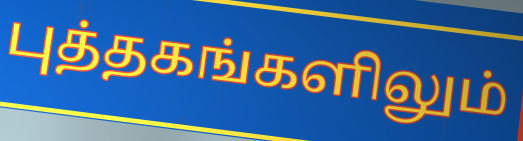
புத்தகங்களிலும்